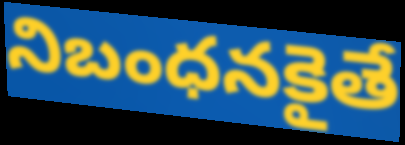
నిబంధనకైతే